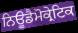
ਨਿਊਡੈਮੋਕ੍ਰੇਟਿਕ